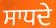
ਸਾਧਦੇ